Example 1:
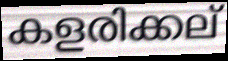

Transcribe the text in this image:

കളരിക്കല്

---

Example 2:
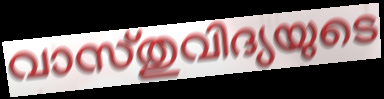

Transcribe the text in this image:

വാസ്തുവിദ്യയുടെ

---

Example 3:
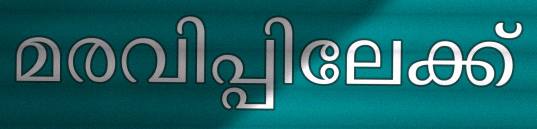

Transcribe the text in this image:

മരവിപ്പിലേക്ക്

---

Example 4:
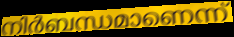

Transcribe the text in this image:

നിർബന്ധമാണെന്ന്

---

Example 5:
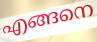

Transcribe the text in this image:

എങ്ങനെ